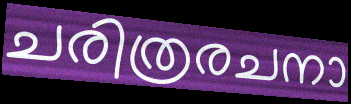
ചരിത്രരചനാ